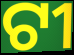
ଟୀ